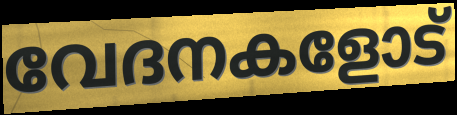
വേദനകളോട്